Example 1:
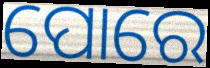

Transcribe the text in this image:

ପୋରେ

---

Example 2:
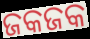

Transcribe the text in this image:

ଜକଜକ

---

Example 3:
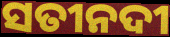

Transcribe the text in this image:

ସତୀନଦୀ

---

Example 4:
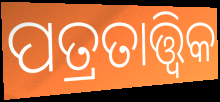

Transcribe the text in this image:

ପତ୍ରତାତ୍ତ୍ୱିକ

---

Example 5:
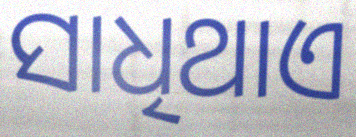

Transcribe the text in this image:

ସାଧିଥାଏ